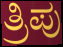
ತ್ರಿಪು